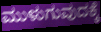
ಮುಳುಗುವುದಕ್ಕೆ